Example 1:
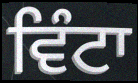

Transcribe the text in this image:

ਵਿੰਟਾ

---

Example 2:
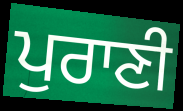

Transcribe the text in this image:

ਪੁਰਾਣੀ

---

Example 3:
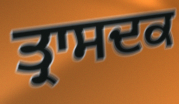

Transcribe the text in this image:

ਤ੍ਰਾਸਦਕ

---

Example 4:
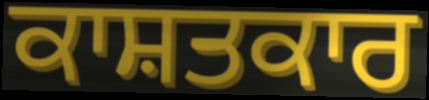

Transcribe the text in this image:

ਕਾਸ਼ਤਕਾਰ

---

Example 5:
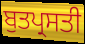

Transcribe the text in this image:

ਬੁਤਪ੍ਰਸਤੀ